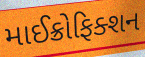
માઈક્રોફિક્શન